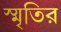
স্মৃতির